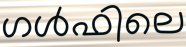
ഗൾഫിലെ